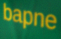
bapne